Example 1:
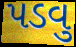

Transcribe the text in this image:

પડવુ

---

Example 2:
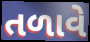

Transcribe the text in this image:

તળાવે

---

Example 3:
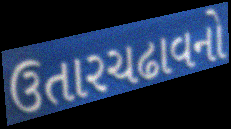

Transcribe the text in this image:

ઉતારચઢાવનો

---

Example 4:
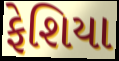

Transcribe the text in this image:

ફેશિયા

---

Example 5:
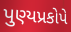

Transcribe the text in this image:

પુણ્યપ્રકોપે